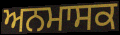
ਅਨਮਾਸਕ